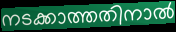
നടക്കാത്തതിനാൽ